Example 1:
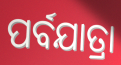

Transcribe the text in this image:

ପର୍ବଯାତ୍ରା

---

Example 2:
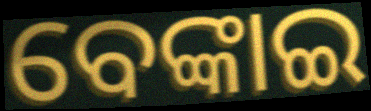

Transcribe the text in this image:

ବେଙ୍କାଇ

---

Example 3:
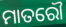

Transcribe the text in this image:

ମାତରୌ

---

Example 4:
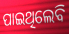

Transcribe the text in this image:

ପାଇଥିଲେବି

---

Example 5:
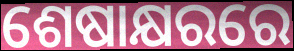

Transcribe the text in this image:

ଶେଷାକ୍ଷରରେ